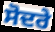
ਸੋਦਰੇ